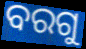
ବରଗୁ